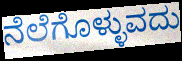
ನೆಲೆಗೊಳ್ಳುವದು